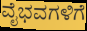
ವೈಭವಗಳಿಗೆ